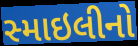
સ્માઇલીનો